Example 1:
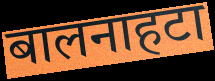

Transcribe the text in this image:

बालनाहटा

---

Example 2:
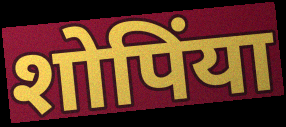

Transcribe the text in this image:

शोपिंया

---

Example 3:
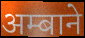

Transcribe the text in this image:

अम्बाने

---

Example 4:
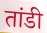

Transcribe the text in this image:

तांडी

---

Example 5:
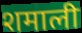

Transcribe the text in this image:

शमाली